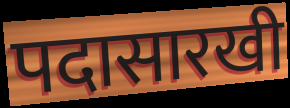
पदासारखी